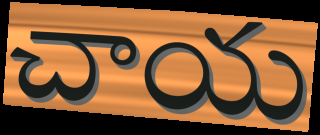
చాయ